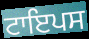
ਟਾਇਪਸ